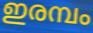
ഇരമ്പം